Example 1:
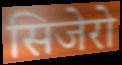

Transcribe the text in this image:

सिजेरो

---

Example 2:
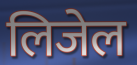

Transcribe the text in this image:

लिजेल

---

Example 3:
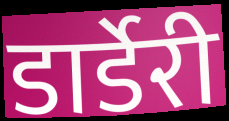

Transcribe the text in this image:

डार्डेरी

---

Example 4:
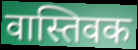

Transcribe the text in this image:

वास्तिवक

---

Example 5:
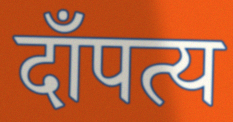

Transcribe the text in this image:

दाँपत्य